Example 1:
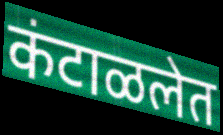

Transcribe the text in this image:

कंटाळलेत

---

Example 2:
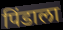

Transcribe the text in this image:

पिंडाला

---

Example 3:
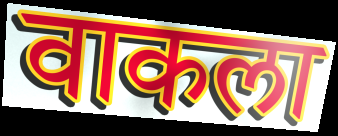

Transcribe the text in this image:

वाकला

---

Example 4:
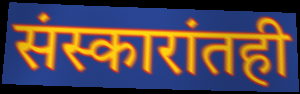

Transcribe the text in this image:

संस्कारांतही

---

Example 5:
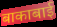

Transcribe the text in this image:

बाकाबाई